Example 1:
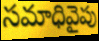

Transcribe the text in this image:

సమాధివైపు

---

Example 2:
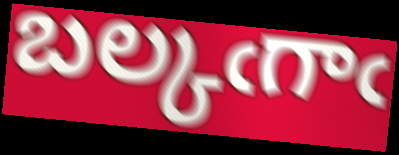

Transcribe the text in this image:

బల్కఁగాఁ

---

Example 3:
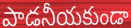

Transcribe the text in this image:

పాడనీయకుండా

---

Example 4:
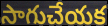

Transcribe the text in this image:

సాగుచేయక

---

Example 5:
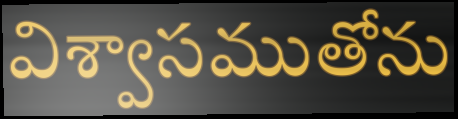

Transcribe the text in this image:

విశ్వాసముతోను